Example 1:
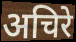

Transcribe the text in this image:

अचिरे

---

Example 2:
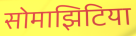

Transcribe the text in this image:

सोमाझिटिया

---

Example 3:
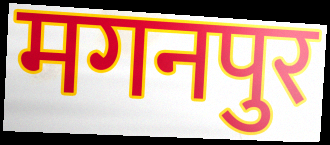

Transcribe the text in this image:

मगनपुर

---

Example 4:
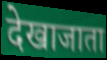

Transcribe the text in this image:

देखाजाता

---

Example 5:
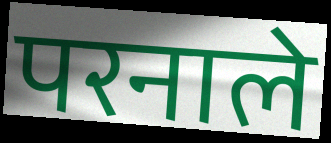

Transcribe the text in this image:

परनाले